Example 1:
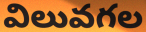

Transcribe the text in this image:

విలువగల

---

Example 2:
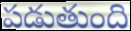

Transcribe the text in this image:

పడుతుంది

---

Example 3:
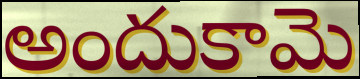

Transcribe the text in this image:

అందుకామె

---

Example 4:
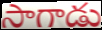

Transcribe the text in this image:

సాగాడు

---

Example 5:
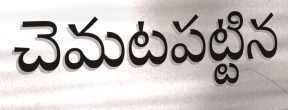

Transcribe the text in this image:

చెమటపట్టిన